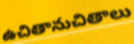
ఉచితానుచితాలు